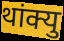
थांक्यु